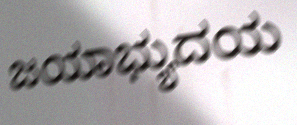
ಜಯಾಭ್ಯುದಯ